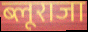
ब्लूराजा